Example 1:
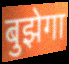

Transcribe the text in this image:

बुझेगा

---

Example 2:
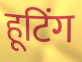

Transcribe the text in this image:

हूटिंग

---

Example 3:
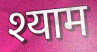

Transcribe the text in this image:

श्याम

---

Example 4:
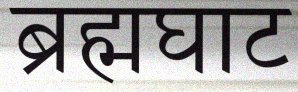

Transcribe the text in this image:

ब्रह्मघाट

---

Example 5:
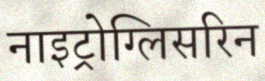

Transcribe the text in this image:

नाइट्रोग्लिसरिन